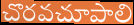
చొరవచూపాలి